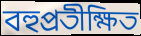
বহুপ্রতীক্ষিত